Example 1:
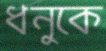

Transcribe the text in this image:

ধনুকে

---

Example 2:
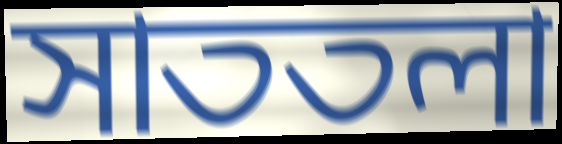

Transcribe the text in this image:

সাততলা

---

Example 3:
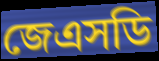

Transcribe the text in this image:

জেএসডি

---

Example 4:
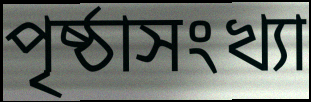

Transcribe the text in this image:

পৃষ্ঠাসংখ্যা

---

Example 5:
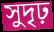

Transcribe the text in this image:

সুদৃঢ়